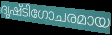
ദൃഷ്ടിഗോചരമായ